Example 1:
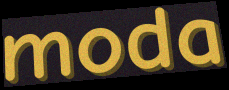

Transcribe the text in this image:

moda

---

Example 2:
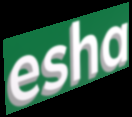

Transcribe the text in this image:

esha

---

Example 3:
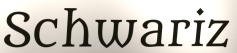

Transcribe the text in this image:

Schwariz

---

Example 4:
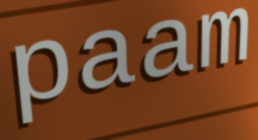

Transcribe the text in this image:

paam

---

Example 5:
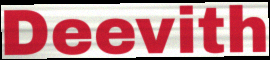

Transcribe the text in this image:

Deevith